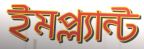
ইমপ্ল্যান্ট